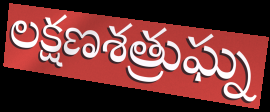
లక్షణశత్రుఘ్న